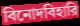
বিনোদবিহারি